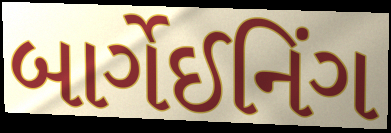
બાર્ગેઈનિંગ